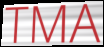
TMA